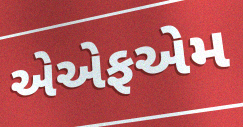
એએફએમ